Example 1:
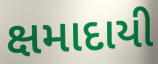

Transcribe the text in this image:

ક્ષમાદાયી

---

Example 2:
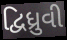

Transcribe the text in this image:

દ્વિધ્રુવી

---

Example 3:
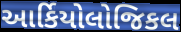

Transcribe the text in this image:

આર્કિયોલોજિકલ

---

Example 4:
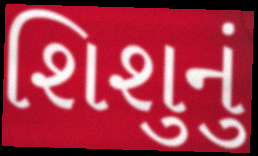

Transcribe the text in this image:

શિશુનું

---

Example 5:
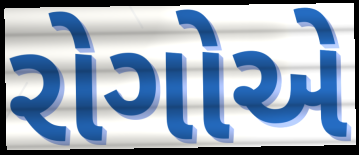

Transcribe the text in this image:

રોગોએ